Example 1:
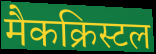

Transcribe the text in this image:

मैकक्रिस्टल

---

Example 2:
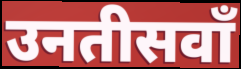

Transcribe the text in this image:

उनतीसवाँ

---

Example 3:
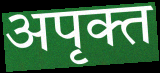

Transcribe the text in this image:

अपृक्त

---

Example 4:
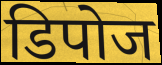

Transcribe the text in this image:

डिपोज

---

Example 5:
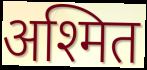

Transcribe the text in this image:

अश्मित